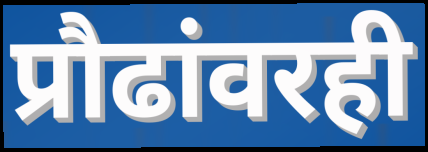
प्रौढांवरही